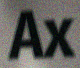
Ax